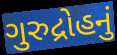
ગુરુદ્રોહનું